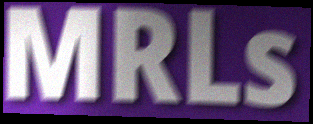
MRLs